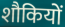
शौकियों